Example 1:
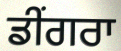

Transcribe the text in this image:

ਡੀਂਗਰਾ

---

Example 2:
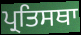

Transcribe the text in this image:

ਪ੍ਰਤਿਸਥਾ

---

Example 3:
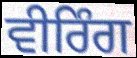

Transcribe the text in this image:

ਵੀਰਿੰਗ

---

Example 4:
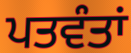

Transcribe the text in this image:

ਪਤਵੰਤਾਂ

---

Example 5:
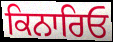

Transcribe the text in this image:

ਕਿਨਾਰਿਓ